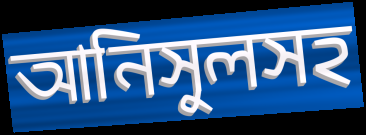
আনিসুলসহ